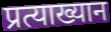
प्रत्याख्यान